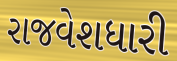
રાજવેશધારી